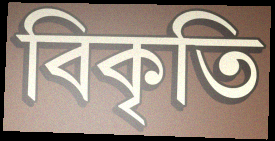
বিকৃতি